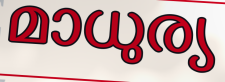
മാധുര്യ